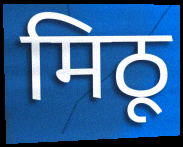
मिठू